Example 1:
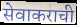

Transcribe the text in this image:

सेवाकराची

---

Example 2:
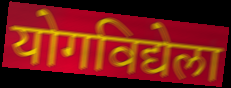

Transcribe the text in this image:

योगविद्येला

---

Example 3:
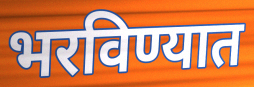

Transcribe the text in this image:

भरविण्यात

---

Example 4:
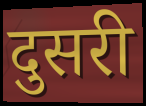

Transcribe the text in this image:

दुसरी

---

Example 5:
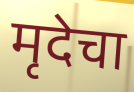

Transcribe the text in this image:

मृदेचा